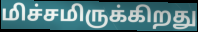
மிச்சமிருக்கிறது